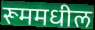
रूममधील